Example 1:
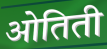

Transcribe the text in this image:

ओतिती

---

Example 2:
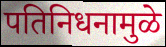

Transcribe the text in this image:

पतिनिधनामुळे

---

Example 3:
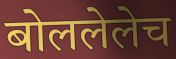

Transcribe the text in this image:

बोललेलेच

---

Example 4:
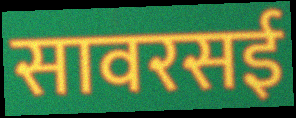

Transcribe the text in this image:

सावरसई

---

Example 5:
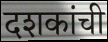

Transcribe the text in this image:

दशकांची